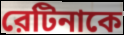
রেটিনাকে